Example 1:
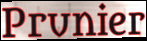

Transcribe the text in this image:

Prunier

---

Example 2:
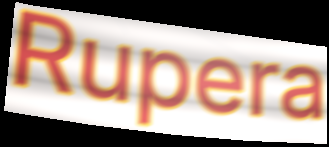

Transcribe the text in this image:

Rupera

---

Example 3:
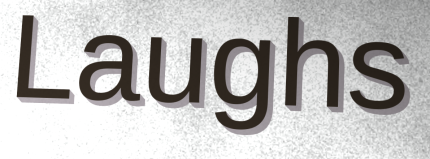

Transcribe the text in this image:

Laughs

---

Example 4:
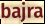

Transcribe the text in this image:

bajra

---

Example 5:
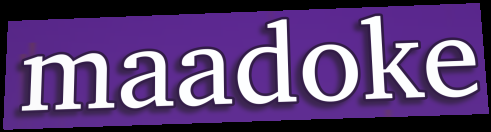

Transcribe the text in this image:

maadoke